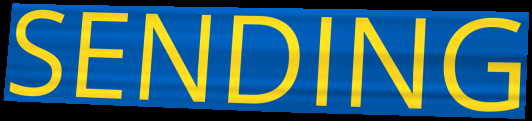
SENDING